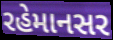
રહેમાનસર